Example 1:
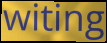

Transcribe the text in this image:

witing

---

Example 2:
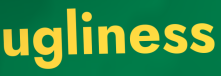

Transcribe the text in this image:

ugliness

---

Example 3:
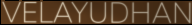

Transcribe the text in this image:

VELAYUDHAN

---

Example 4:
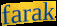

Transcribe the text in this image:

farak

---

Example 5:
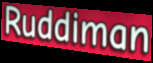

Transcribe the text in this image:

Ruddiman